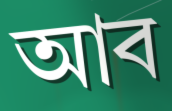
আব